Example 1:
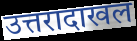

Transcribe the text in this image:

उत्तरादाखल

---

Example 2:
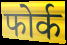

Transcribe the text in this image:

फोर्क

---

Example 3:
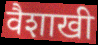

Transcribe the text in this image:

वैशाखी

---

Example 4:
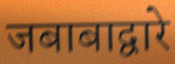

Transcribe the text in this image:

जबाबाद्वारे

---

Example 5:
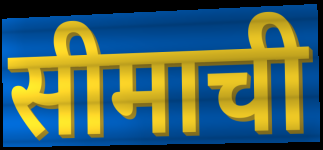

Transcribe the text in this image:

सीमाची